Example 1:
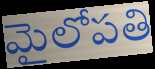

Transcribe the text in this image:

మైలోపతి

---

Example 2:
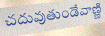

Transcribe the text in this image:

చదువుతుండేవాణ్ణి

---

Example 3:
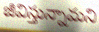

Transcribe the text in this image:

జీవిస్తున్నామని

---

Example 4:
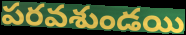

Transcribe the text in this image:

పరవశుండయి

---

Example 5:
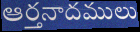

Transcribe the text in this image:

ఆర్తనాదములు